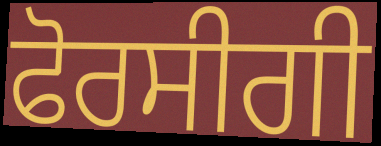
ਫੋਰਸੀਗੀ